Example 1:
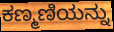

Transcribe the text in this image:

ಕಣ್ಮಣಿಯನ್ನು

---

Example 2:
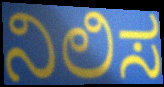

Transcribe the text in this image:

ನಿಲಿಸ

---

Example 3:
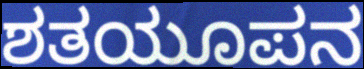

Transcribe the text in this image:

ಶತಯೂಪನ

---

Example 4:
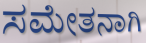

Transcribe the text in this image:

ಸಮೇತನಾಗಿ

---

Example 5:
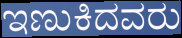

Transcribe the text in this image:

ಇಣುಕಿದವರು